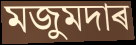
মজুমদাৰ